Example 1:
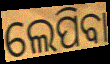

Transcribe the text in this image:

ଲେପିବା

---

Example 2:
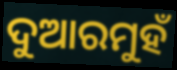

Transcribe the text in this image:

ଦୁଆରମୁହଁ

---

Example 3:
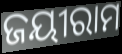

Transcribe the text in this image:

ଜୟୀରାମ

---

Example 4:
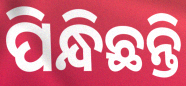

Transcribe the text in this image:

ପିନ୍ଧିଛନ୍ତି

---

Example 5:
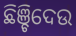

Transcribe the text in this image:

ଛିଞ୍ଚିଦେଉ